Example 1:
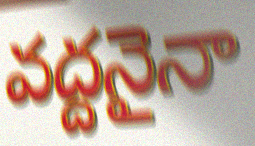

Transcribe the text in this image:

వద్దనైనా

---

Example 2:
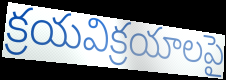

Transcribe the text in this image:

క్రయవిక్రయాలపై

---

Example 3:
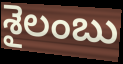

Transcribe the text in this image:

శైలంబు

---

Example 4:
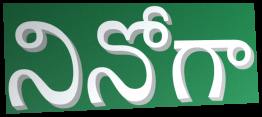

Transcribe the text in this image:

నినోగా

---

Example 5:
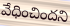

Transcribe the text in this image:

వేధించిందని